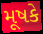
મૂષકે